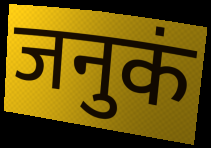
जनुकं